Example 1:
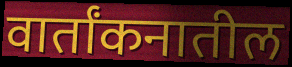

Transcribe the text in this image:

वार्तांकनातील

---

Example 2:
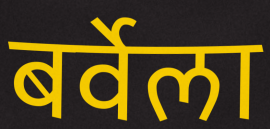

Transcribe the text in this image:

बर्वेला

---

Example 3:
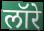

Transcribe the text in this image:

लॉरे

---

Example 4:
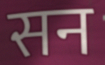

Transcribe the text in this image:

सन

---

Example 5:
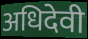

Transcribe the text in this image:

अधिदेवी